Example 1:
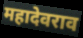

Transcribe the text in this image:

महादेवराव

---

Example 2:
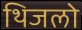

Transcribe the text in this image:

थिजलो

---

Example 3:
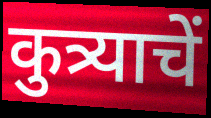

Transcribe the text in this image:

कुत्र्याचें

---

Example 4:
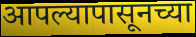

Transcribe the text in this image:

आपल्यापासूनच्या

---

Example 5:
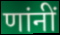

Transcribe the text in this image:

णांनीं